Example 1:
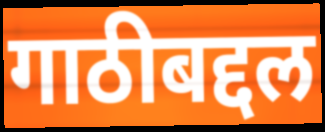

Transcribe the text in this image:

गाठीबद्दल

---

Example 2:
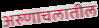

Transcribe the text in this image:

अरुणाचलातील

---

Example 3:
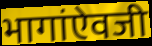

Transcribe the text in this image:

भागांऐवजी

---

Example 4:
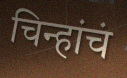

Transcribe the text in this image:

चिन्हांचं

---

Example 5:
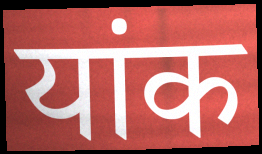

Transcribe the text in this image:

यांक